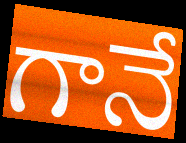
గానే